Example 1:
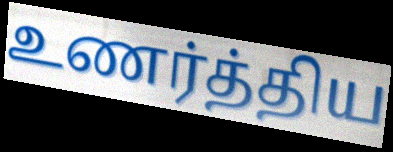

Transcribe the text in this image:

உணர்த்திய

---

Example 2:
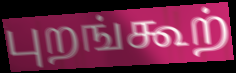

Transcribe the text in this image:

புறங்கூற்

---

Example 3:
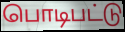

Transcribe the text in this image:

பொடிபட்டு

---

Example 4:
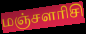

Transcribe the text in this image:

மஞ்சளரிசி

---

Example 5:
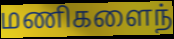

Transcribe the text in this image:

மணிகளைந்